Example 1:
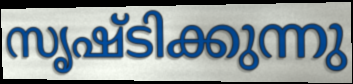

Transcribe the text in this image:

സൃഷ്ടിക്കുന്നു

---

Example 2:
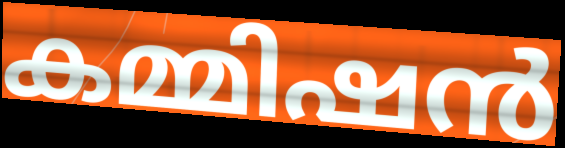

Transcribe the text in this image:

കമ്മിഷൻ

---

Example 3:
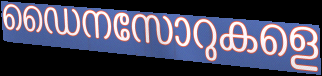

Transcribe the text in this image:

ഡൈനസോറുകളെ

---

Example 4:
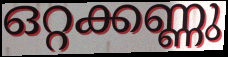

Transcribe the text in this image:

ഒറ്റക്കണ്ണു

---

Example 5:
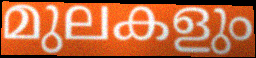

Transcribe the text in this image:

മുലകളും